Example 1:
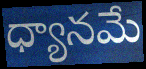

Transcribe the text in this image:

ధ్యానమే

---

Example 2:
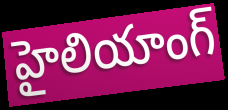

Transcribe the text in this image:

హైలియాంగ్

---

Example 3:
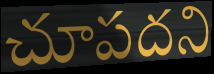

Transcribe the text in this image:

చూపదని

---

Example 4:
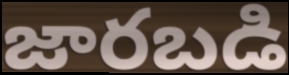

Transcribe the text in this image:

జారబడి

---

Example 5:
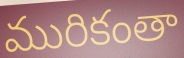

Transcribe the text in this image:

మురికంతా